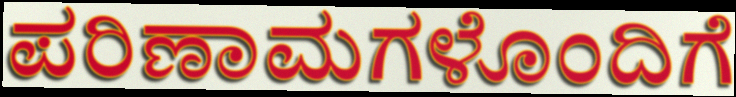
ಪರಿಣಾಮಗಳೊಂದಿಗೆ